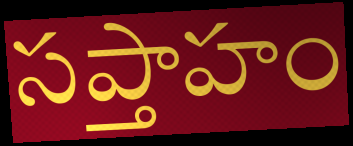
సప్తాహం